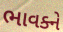
ભાવક્ને